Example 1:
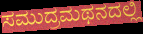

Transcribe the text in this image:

ಸಮುದ್ರಮಥನದಲ್ಲಿ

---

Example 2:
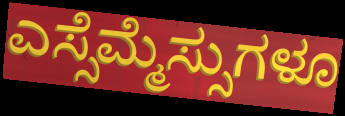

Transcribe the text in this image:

ಎಸ್ಸೆಮ್ಮೆಸ್ಸುಗಳೂ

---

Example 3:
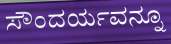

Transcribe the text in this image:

ಸೌಂದರ್ಯವನ್ನೂ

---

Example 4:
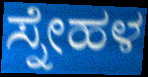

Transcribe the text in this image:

ಸ್ನೇಹಳ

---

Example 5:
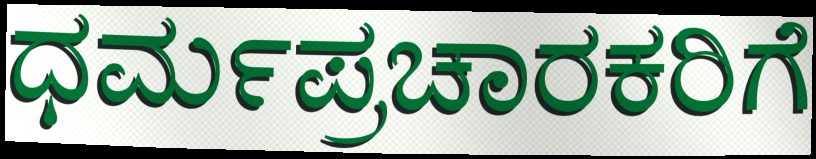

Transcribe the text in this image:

ಧರ್ಮಪ್ರಚಾರಕರಿಗೆ